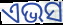
ଏଭସ